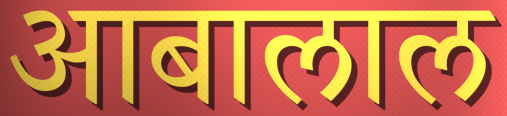
आबालाल